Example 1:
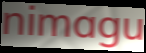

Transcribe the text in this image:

nimagu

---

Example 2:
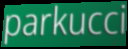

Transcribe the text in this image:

parkucci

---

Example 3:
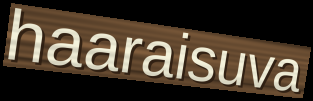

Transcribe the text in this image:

haaraisuva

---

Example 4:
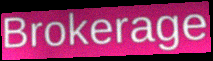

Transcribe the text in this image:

Brokerage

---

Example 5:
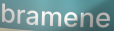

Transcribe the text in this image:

bramene